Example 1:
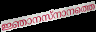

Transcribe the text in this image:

ജ്ഞാനസ്നാനത്തെ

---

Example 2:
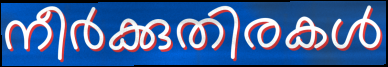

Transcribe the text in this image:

നീർക്കുതിരകൾ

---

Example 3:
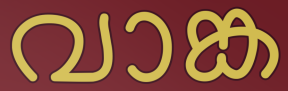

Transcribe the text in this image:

വാങ്ക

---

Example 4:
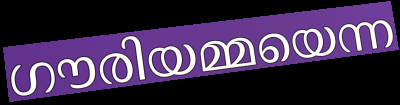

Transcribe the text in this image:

ഗൗരിയമ്മയെന്ന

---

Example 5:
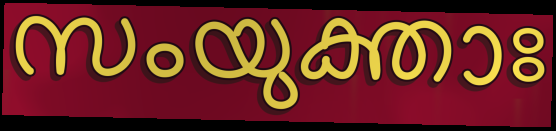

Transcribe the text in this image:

സംയുക്താഃ